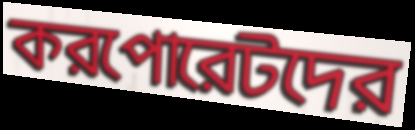
করপোরেটদের